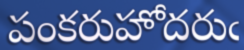
పంకరుహోదరుఁ